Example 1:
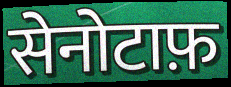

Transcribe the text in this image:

सेनोटाफ़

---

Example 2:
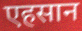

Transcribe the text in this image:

एहसान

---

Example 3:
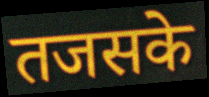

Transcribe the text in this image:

तजसके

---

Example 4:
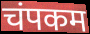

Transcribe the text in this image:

चंपकम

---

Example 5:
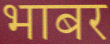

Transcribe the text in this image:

भाबर